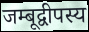
जम्बूद्वीपस्य